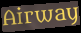
Airway